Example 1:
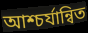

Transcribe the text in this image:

আশ্চর্যান্বিত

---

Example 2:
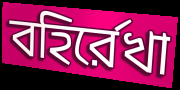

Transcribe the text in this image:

বহির্রেখা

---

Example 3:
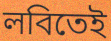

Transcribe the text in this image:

লবিতেই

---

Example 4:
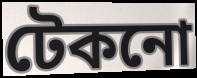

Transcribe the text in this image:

টেকনো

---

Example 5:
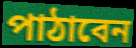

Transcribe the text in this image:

পাঠাবেন